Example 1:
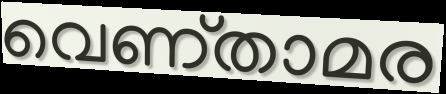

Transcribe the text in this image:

വെണ്താമര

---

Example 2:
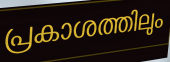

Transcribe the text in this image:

പ്രകാശത്തിലും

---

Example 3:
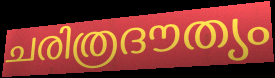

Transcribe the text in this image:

ചരിത്രദൗത്യം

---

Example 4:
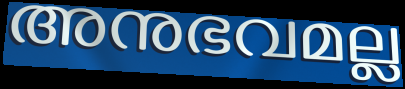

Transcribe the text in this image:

അനുഭവമല്ല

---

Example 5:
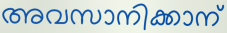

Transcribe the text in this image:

അവസാനിക്കാന്